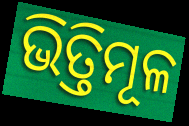
ଭିତ୍ତିମୂଳ